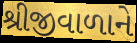
શ્રીજીવાળાને